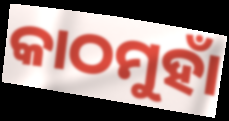
କାଠମୁହାଁ